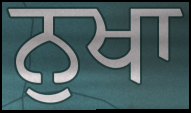
ਨੁਖਾ